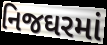
નિજઘરમાં